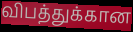
விபத்துக்கான